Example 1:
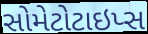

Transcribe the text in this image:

સોમેટોટાઇપ્સ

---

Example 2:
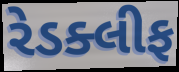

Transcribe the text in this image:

રેડક્લીફ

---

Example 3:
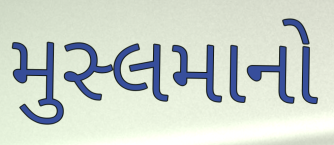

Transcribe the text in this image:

મુસ્લમાનો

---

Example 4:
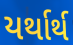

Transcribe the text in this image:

યર્થાર્થ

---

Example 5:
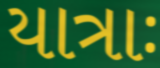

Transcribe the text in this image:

યાત્રાઃ